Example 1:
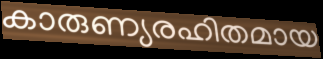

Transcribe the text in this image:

കാരുണ്യരഹിതമായ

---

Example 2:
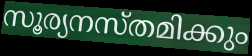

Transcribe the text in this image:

സൂര്യനസ്തമിക്കും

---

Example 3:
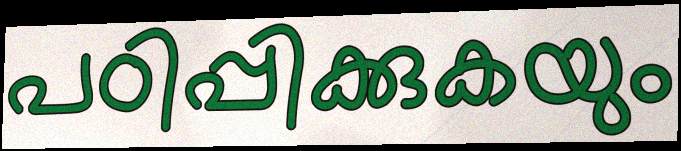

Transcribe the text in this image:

പഠിപ്പിക്കുകയും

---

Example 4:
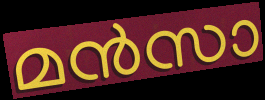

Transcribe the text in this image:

മൻസാ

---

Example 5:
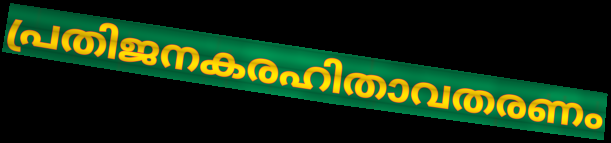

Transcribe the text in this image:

പ്രതിജനകരഹിതാവതരണം